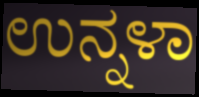
ಉನ್ನಳಾ